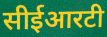
सीईआरटी